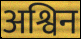
अश्विन